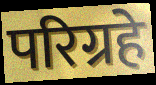
परिग्रहे